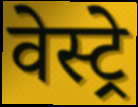
वेस्ट्रे